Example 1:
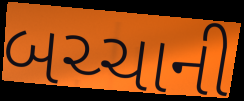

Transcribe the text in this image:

બચ્ચાની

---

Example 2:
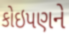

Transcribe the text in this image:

કોઇપણને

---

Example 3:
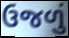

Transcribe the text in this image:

ઉજળું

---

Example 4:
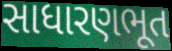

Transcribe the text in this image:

સાધારણભૂત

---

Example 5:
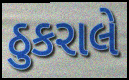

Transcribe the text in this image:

ઠુકરાલે